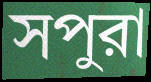
সপুরা